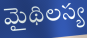
మైథిలస్య